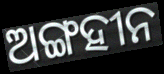
ଅଙ୍ଗହୀନ